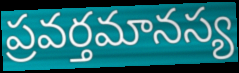
ప్రవర్తమానస్య